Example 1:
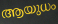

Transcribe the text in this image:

ആയുധം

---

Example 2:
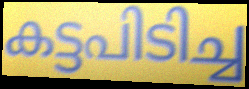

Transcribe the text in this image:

കട്ടപിടിച്ച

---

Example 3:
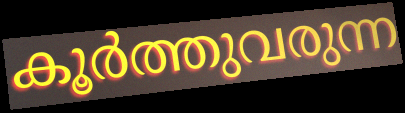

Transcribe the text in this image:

കൂർത്തുവരുന്ന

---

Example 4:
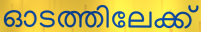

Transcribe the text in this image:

ഓടത്തിലേക്ക്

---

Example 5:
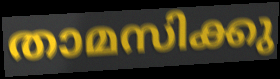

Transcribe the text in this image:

താമസിക്കു